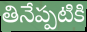
తినేప్పటికి